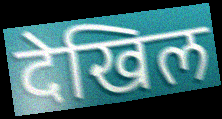
देखिल